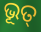
ଭୂତ୍